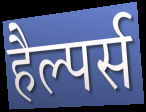
हैल्पर्स